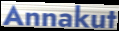
Annakut